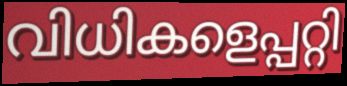
വിധികളെപ്പറ്റി